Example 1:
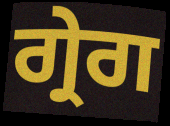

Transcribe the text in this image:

ਗ੍ਰੇਗ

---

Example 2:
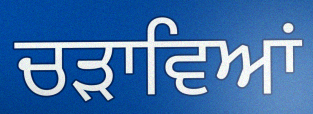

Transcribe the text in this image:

ਚੜਾਵਿਆਂ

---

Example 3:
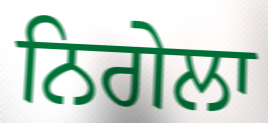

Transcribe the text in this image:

ਨਿਗੇਲਾ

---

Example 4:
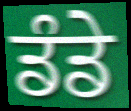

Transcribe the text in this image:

ਡੰਡੇ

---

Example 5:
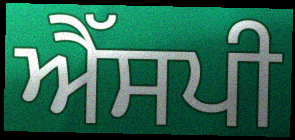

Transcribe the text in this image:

ਐੱਸਪੀ